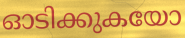
ഓടിക്കുകയോ